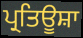
ਪ੍ਰਤਿਊਸ਼ਾ